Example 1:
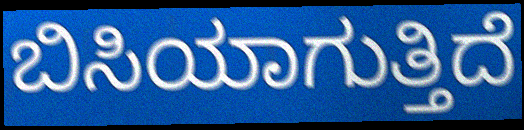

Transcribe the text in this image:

ಬಿಸಿಯಾಗುತ್ತಿದೆ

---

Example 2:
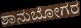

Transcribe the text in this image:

ಶಾನುಬೋಗರ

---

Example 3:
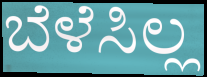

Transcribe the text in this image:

ಬೆಳೆಸಿಲ್ಲ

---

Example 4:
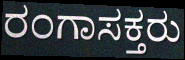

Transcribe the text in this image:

ರಂಗಾಸಕ್ತರು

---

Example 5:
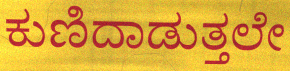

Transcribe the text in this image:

ಕುಣಿದಾಡುತ್ತಲೇ